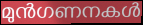
മുൻഗണനകൾ